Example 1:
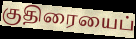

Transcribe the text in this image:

குதிரையைப்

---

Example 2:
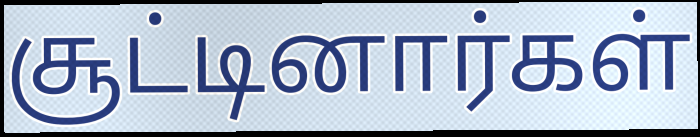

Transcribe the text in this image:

சூட்டினார்கள்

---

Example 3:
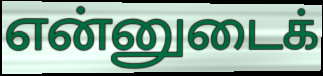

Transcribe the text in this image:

என்னுடைக்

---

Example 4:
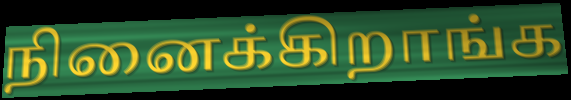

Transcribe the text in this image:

நினைக்கிறாங்க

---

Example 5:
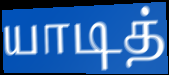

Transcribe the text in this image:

யாடித்